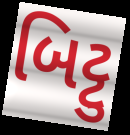
બિટ્ટુ